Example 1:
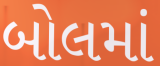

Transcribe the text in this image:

બોલમાં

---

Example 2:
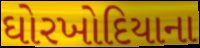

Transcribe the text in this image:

ઘોરખોદિયાના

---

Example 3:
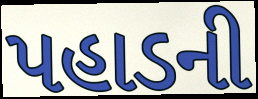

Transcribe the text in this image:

પહાડની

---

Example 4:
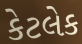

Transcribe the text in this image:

કેટલેક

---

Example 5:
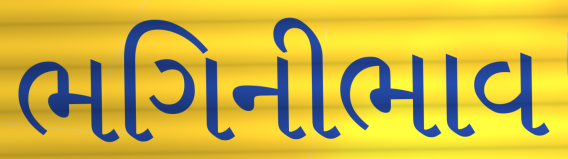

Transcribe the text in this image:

ભગિનીભાવ